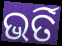
ଭର୍ତି